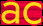
ac